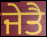
ਜੇਤੈ